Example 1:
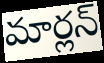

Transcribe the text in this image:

మార్లన్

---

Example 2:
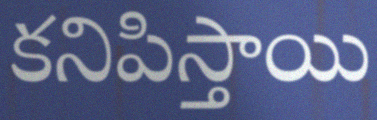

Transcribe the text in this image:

కనిపిస్తాయి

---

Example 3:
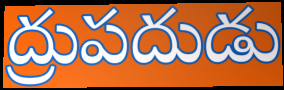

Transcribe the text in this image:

ద్రుపదుడు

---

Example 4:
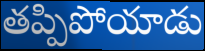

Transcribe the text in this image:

తప్పిపోయాడు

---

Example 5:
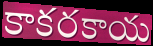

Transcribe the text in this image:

కాకరకాయ